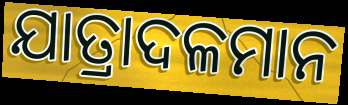
ଯାତ୍ରାଦଳମାନ